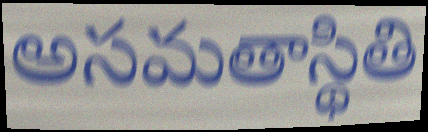
అసమతాస్థితి